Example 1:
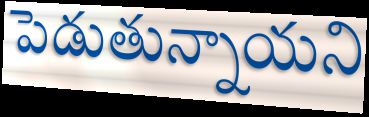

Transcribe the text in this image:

పెడుతున్నాయని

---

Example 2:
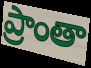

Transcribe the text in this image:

ప్రాంతా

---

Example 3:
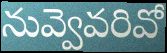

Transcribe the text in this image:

నువ్వెవరివో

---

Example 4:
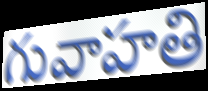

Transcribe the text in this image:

గువాహతి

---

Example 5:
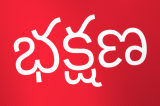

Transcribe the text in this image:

భక్షణ